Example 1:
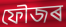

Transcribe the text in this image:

ফৌজৰ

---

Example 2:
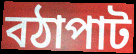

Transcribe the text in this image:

বঠাপাট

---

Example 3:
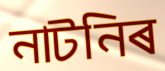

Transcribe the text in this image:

নাটনিৰ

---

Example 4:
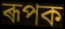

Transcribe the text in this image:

ৰূপক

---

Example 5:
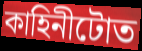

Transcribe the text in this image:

কাহিনীটোত